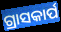
ଗ୍ରାସକାର୍ପ